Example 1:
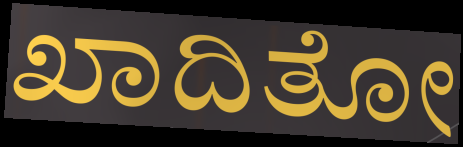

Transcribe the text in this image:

ಖಾದಿತೋ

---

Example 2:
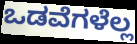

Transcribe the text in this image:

ಒಡವೆಗಳೆಲ್ಲ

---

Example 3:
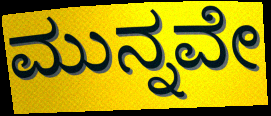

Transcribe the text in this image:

ಮುನ್ನವೇ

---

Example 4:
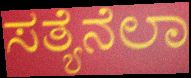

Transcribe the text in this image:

ಸತ್ಯೆನೆಲಾ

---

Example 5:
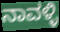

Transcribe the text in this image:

ನಾವಳ್ಳಿ